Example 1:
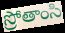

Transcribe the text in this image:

స్రోతాంసి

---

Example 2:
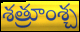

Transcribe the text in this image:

శత్రూంశ్చ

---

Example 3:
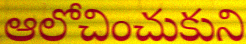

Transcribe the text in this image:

ఆలోచించుకుని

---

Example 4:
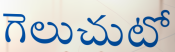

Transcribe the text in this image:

గెలుచుటో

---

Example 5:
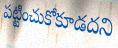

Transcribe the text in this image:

పట్టించుకోకూడదని